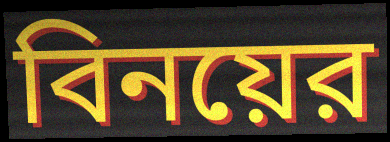
বিনয়ের